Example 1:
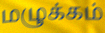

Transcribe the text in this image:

மழுக்கம்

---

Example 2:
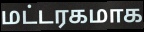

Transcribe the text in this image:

மட்டரகமாக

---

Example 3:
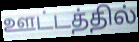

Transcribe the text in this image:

ஊட்டத்தில்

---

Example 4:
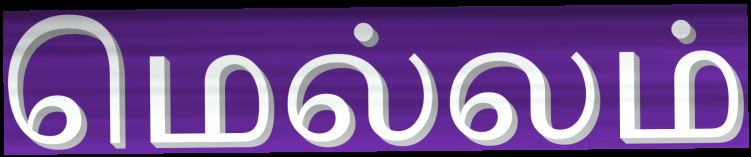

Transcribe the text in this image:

மெல்லம்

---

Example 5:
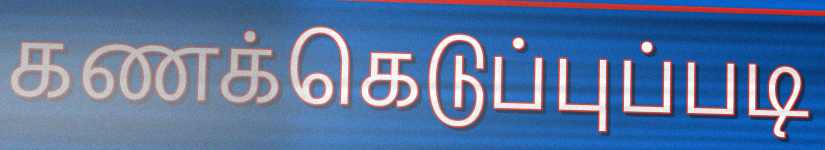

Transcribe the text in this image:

கணக்கெடுப்புப்படி